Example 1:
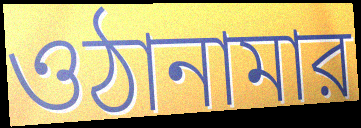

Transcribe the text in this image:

ওঠানামার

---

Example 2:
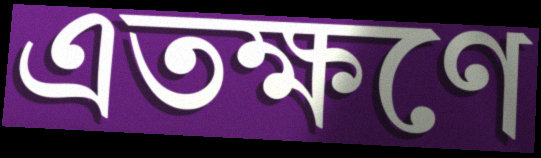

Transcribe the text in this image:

এতক্ষণে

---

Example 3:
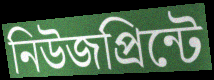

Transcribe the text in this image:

নিউজপ্রিন্টে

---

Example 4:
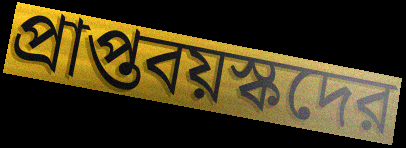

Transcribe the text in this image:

প্রাপ্তবয়স্কদের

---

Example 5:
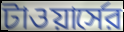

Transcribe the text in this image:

টাওয়ার্সের